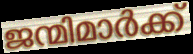
ജന്മിമാർക്ക്